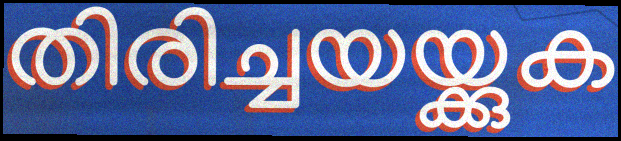
തിരിച്ചയയ്ക്കുക